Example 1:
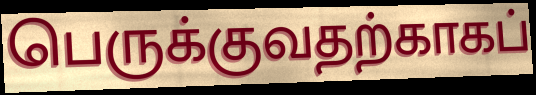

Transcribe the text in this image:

பெருக்குவதற்காகப்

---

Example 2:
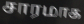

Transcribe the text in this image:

சாரமாக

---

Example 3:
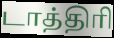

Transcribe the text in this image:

டாத்திரி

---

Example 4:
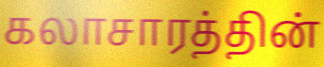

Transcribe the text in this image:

கலாசாரத்தின்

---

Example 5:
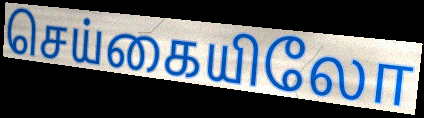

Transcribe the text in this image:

செய்கையிலோ